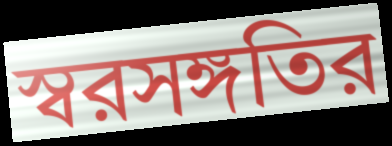
স্বরসঙ্গতির